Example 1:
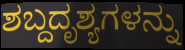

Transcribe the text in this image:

ಶಬ್ದದೃಶ್ಯಗಳನ್ನು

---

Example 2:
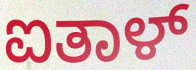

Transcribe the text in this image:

ಐತಾಳ್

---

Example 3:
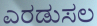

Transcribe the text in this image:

ಎರಡುಸಲ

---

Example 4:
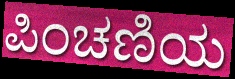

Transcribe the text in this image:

ಪಿಂಚಣಿಯ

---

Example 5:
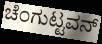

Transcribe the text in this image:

ಚೆಂಗುಟ್ಟವನ್